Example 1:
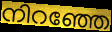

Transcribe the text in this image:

നിറഞ്ഞേ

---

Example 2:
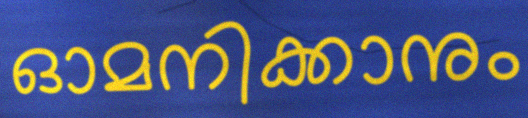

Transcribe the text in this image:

ഓമനിക്കാനും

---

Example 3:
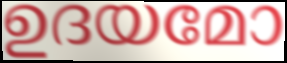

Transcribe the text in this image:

ഉദയമോ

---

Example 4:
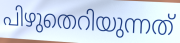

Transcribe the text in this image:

പിഴുതെറിയുന്നത്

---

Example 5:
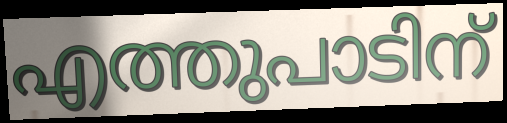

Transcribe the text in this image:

എത്തുപാടിന്